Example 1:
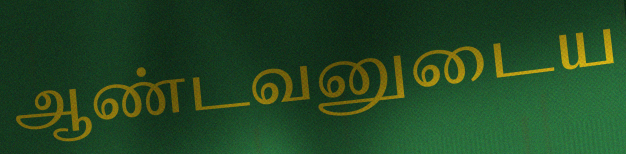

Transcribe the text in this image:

ஆண்டவனுடைய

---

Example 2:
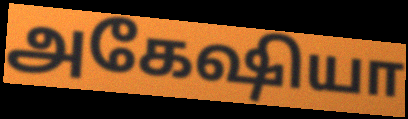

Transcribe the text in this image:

அகேஷியா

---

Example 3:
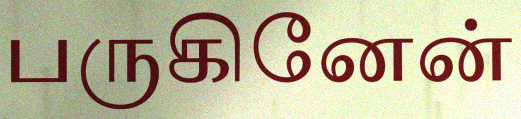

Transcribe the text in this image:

பருகினேன்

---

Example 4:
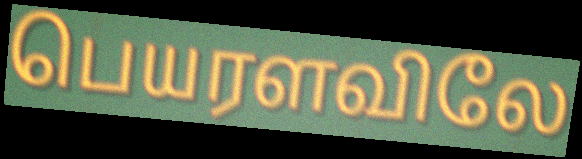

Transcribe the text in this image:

பெயரளவிலே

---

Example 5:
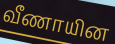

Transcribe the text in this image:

வீணாயின